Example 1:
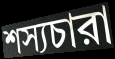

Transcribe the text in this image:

শস্যচারা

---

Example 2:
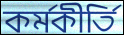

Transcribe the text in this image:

কর্মকীর্তি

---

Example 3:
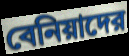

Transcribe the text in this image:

বেনিয়াদের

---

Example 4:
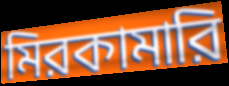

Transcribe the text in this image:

মিরকামারি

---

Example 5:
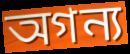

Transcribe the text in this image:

অগন্য